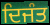
ਦਿਜੰਤ